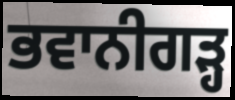
ਭਵਾਨੀਗੜ੍ਹ